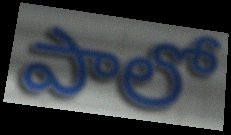
పాలో